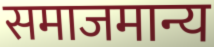
समाजमान्य